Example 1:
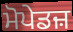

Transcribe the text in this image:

ਮੋਪੇਡਜ਼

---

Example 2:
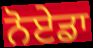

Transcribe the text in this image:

ਨੋਏਡਾ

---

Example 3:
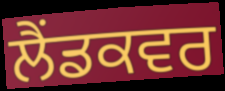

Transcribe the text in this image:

ਲੈਂਡਕਵਰ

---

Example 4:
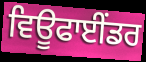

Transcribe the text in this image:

ਵਿਊਫਾਈਂਡਰ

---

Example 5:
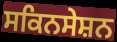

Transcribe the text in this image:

ਸਕਿਨਸੇਸ਼ਨ